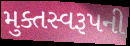
મુક્તસ્વરૂપની